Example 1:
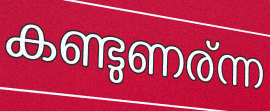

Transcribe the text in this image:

കണ്ടുണര്ന്ന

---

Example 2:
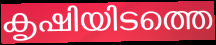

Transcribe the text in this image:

കൃഷിയിടത്തെ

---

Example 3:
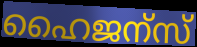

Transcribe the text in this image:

ഹൈജന്സ്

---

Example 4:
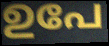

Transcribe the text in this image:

ഉപേ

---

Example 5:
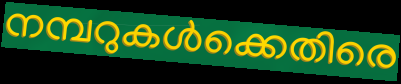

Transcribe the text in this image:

നമ്പറുകൾക്കെതിരെ